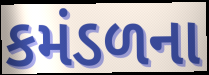
કમંડળના